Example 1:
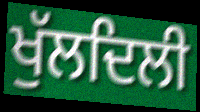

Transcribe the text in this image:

ਖੁੱਲਦਿਲੀ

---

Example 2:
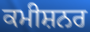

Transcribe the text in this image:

ਕਮੀਸ਼ਨਰ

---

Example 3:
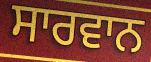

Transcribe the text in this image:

ਸਾਰਵਾਨ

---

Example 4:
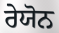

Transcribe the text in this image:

ਰੇਯੋਨ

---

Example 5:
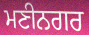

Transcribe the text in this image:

ਮਣੀਨਗਰ